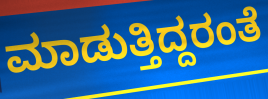
ಮಾಡುತ್ತಿದ್ದರಂತೆ